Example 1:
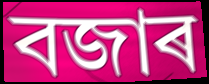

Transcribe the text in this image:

বজাৰ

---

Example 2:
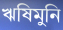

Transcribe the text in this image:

ঋষিমুনি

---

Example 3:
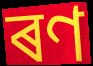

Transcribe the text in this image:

ৰণ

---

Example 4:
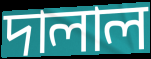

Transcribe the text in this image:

দালাল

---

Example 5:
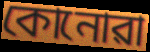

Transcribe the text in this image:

কোনোৱা